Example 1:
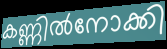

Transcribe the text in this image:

കണ്ണിൽനോക്കി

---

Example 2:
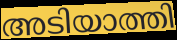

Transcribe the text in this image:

അടിയാത്തി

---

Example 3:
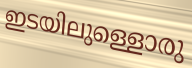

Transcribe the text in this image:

ഇടയിലുള്ളൊരു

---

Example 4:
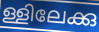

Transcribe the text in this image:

ള്ളിലേക്കു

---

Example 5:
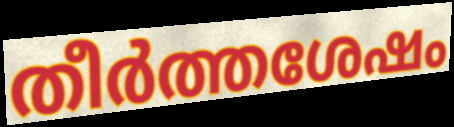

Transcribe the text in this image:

തീർത്തശേഷം